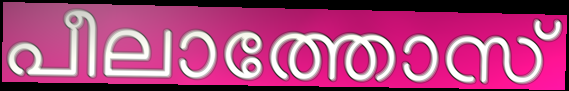
പീലാത്തോസ്